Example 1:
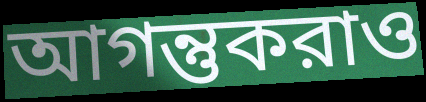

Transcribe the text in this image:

আগন্তুকরাও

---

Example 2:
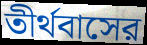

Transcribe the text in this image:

তীর্থবাসের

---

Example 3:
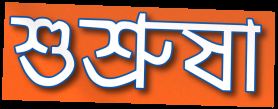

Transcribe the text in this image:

শুশ্রুষা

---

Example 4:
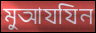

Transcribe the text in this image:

মুআযযিন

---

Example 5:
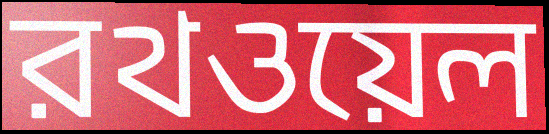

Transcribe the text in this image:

রথওয়েল